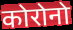
कोरोनो